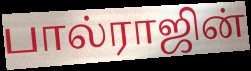
பால்ராஜின்